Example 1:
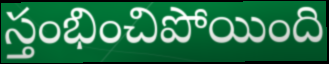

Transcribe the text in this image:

స్తంభించిపోయింది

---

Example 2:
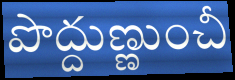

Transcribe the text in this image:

పొద్దుణ్ణుంచీ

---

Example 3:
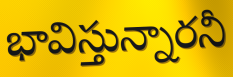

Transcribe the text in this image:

భావిస్తున్నారనీ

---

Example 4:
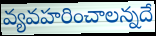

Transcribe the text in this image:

వ్యవహరించాలన్నదే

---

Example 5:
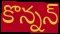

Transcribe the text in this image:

కొన్నన్